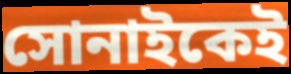
সোনাইকেই